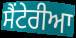
ਸੈਂਟੇਰੀਆ